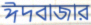
ঈদবাজার